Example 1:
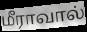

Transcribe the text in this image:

மீராவால்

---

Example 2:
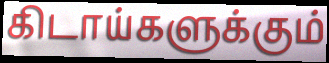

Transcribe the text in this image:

கிடாய்களுக்கும்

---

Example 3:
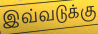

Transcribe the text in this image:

இவ்வடுக்கு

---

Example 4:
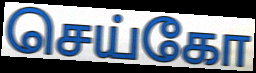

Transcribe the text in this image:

செய்கோ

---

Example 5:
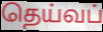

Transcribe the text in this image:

தெய்வப்